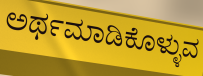
ಅರ್ಥಮಾಡಿಕೊಳ್ಳುವ